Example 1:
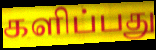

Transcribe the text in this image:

களிப்பது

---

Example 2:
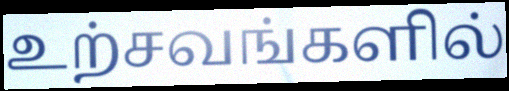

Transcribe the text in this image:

உற்சவங்களில்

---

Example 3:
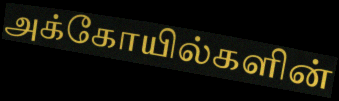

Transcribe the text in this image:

அக்கோயில்களின்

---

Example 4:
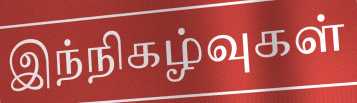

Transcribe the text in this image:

இந்நிகழ்வுகள்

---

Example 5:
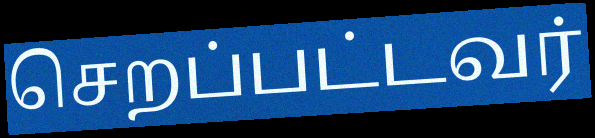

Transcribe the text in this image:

செறப்பட்டவர்